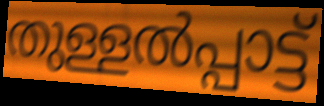
തുള്ളൽപ്പാട്ട്